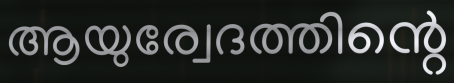
ആയുര്വേദത്തിന്റെ